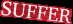
SUFFER